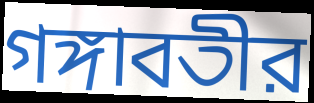
গঙ্গাবতীর